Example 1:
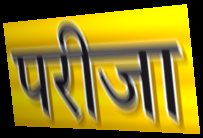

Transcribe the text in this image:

परीजा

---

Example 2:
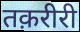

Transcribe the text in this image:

तक़रीरी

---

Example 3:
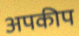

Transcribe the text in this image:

अपकीप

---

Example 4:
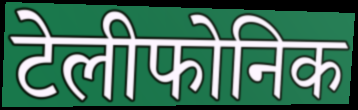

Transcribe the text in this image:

टेलीफोनिक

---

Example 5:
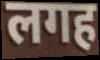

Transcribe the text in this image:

लगह